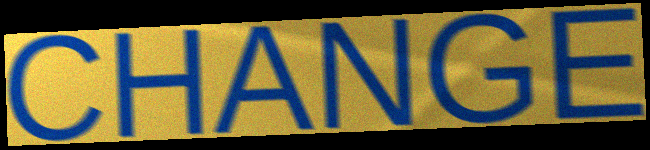
CHANGE